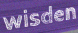
wisden